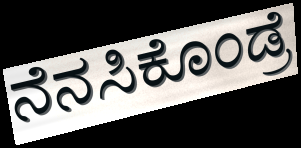
ನೆನಸಿಕೊಂಡ್ರೆ